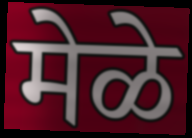
मेळे